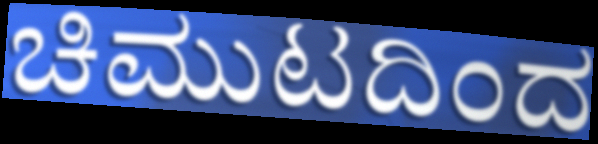
ಚಿಮುಟದಿಂದ